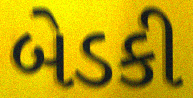
બેડકી